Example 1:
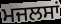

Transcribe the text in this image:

ਮਜਲਸਾਂ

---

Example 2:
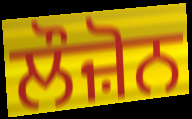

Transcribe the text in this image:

ਲੌਜ਼ੋਨ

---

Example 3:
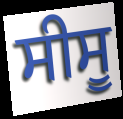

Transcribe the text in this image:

ਸੀਸੂ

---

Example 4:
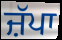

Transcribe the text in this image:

ਜ਼ੱਪਾ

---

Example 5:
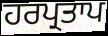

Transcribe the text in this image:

ਹਰਪ੍ਰਤਾਪ